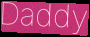
Daddy